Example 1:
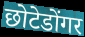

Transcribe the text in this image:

छोटेडोंगर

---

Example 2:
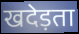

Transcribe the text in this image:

खदेड़ता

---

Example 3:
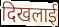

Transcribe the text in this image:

दिखलाई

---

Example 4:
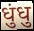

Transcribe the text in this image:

धुंधु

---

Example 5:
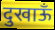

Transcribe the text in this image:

दुखाऊँ